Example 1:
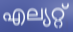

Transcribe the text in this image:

എല്യറ്റ്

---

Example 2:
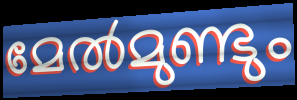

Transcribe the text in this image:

മേൽമുണ്ടും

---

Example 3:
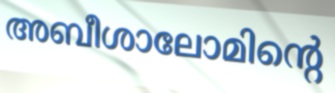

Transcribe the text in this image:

അബീശാലോമിന്റെ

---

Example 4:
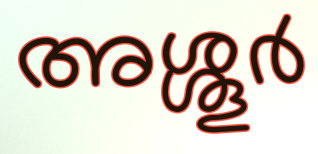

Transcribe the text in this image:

അശ്ശൂർ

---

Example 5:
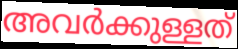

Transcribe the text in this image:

അവർക്കുള്ളത്